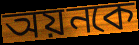
অয়নকে